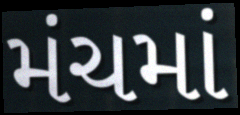
મંચમાં